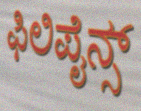
ಫಿಲಿಪೈನ್ಸ್